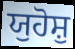
ਯੁਹੋਸ਼ੁ